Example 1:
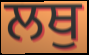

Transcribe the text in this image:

ਲਥੁ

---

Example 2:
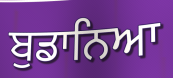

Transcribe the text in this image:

ਬੁਡਾਨਿਆ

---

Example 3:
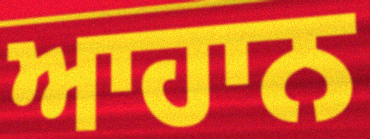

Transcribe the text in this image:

ਆਹਾਨ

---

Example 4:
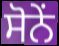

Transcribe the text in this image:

ਸੋਨੇਂ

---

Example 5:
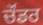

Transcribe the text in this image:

ਚੌਂਡਰ